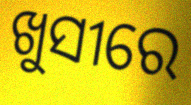
ଖୁସୀରେ